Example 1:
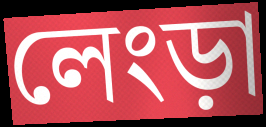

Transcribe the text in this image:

লেংড়া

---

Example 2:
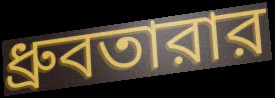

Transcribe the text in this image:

ধ্রুবতারার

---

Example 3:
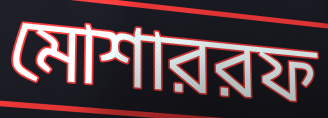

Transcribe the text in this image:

মোশাররফ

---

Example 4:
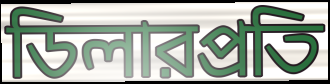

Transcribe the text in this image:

ডিলারপ্রতি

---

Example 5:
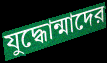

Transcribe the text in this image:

যুদ্ধোন্মাদের